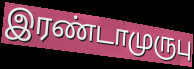
இரண்டாமுருபு